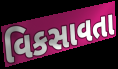
વિકસાવતા